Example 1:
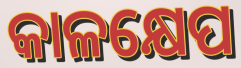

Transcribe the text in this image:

କାଳକ୍ଷେପ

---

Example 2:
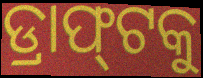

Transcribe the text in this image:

ଡ୍ରାଫ୍‌ଟକୁ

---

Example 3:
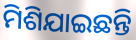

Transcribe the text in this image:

ମିଶିଯାଇଛନ୍ତି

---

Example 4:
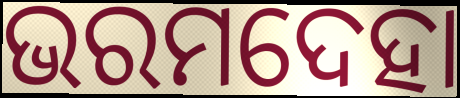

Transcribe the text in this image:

ଭରମଦେହା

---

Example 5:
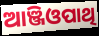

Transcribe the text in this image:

ଆଞ୍ଜିଓପାଥି